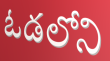
ఓడలోని